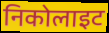
निकोलाइट